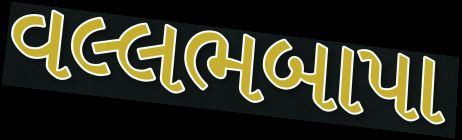
વલ્લભબાપા